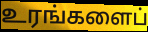
உரங்களைப்